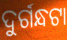
ଦୁର୍ଗନ୍ଧଟା